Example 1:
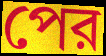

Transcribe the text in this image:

পের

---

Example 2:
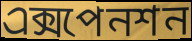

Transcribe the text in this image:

এক্সপেনশন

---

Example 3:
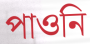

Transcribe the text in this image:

পাওনি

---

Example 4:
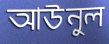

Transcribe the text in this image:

আউনুল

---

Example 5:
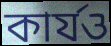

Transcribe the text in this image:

কার্যও